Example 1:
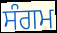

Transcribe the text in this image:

ਸੰਗਮ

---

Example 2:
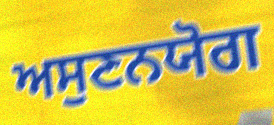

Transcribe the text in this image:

ਅਸੁਣਨਯੋਗ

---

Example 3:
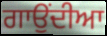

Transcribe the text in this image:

ਗਾਉਂਦੀਆ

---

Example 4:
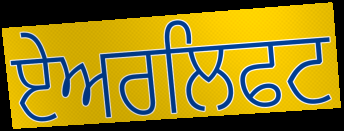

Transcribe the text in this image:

ਏਅਰਲਿਫਟ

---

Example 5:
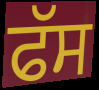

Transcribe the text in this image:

ਫੱਸ